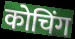
कोचिंग